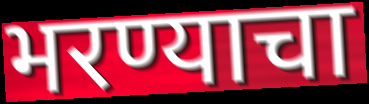
भरण्याचा